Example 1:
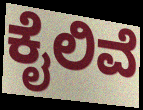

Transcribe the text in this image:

ಕೈಲಿವೆ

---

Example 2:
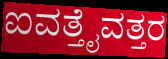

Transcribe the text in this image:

ಐವತ್ತೈವತ್ತರ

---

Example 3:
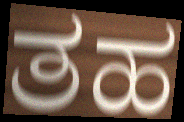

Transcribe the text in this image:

ತಹ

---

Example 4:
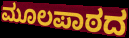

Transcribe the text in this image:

ಮೂಲಪಾಠದ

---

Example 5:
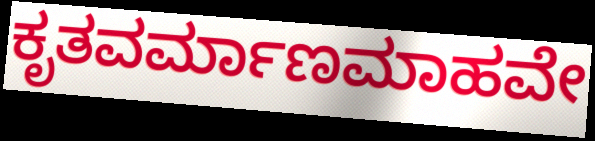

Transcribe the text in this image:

ಕೃತವರ್ಮಾಣಮಾಹವೇ